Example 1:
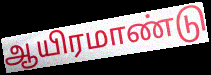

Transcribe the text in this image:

ஆயிரமாண்டு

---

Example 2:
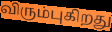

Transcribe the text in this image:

விரும்புகிறது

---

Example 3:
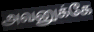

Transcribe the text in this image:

அவனுக்கே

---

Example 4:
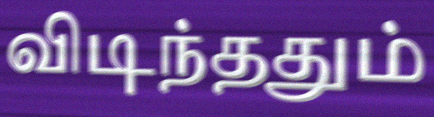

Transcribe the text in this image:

விடிந்ததும்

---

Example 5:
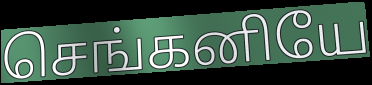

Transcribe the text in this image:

செங்கனியே